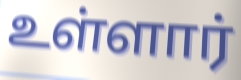
உள்ளார்